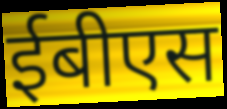
ईबीएस